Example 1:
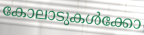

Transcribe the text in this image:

കോലാടുകൾക്കോ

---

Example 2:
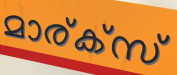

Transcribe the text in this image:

മാര്ക്സ്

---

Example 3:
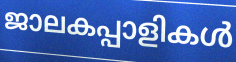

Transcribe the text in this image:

ജാലകപ്പാളികൾ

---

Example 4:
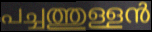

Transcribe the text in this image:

പച്ചത്തുള്ളൻ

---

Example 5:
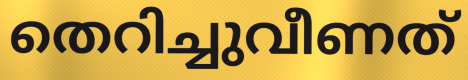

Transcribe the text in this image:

തെറിച്ചുവീണത്